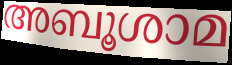
അബൂശാമ